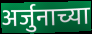
अर्जुनाच्या